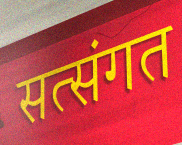
सत्संगत